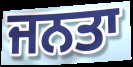
ਜਨਤਾ